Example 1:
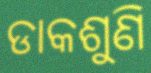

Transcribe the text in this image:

ଡାକଶୁଣି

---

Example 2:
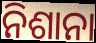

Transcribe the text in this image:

ନିଶାନା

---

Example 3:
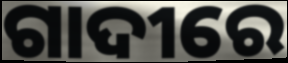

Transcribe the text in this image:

ଗାଦୀରେ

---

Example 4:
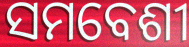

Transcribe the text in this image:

ସମବେଶୀ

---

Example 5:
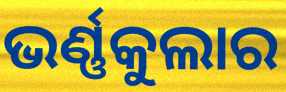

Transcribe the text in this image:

ଭର୍ଣ୍ଣକୁଲାର